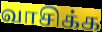
வாசிக்க